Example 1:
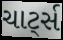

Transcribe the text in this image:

ચાર્ટ્સ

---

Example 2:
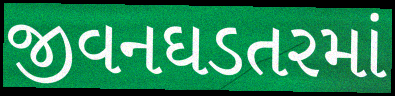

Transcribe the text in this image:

જીવનઘડતરમાં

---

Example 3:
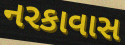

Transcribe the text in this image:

નરકાવાસ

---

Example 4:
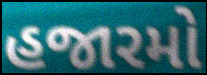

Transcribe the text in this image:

હજારમો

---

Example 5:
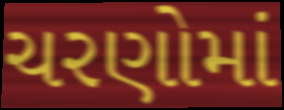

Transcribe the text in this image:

ચરણોમાં